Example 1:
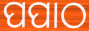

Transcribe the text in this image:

ପପାଠ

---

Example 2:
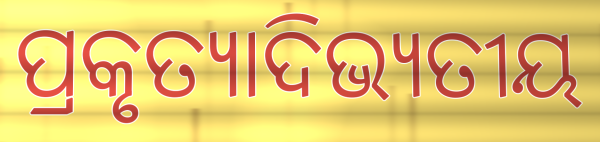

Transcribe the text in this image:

ପ୍ରକୃତ୍ୟାଦିଭ୍ୟତୀୟ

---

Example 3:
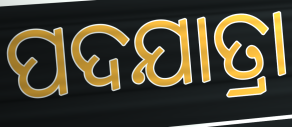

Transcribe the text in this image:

ପଦଯାତ୍ରା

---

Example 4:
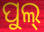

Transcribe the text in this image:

ପୁଲ୍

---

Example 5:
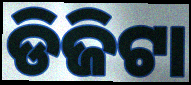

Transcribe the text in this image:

ଡିଜିଟା